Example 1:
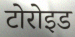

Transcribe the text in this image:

टोरोइड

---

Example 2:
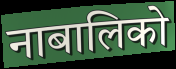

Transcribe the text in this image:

नाबालिको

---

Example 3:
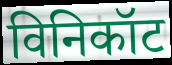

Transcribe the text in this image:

विनिकॉट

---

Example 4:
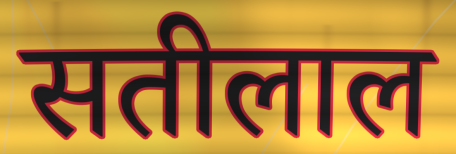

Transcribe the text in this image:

सतीलाल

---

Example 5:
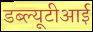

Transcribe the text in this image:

डब्ल्यूटीआई